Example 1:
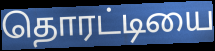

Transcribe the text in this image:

தொரட்டியை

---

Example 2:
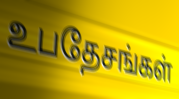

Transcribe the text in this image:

உபதேசங்கள்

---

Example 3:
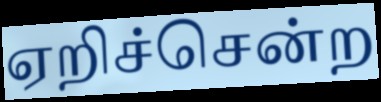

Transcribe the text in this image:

ஏறிச்சென்ற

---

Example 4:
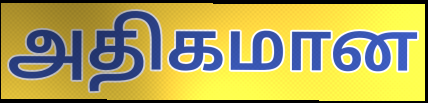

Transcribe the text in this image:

அதிகமான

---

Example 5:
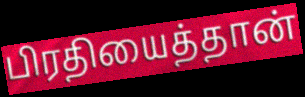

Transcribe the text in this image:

பிரதியைத்தான்